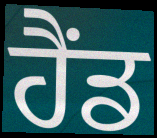
ਹੈਂਡ